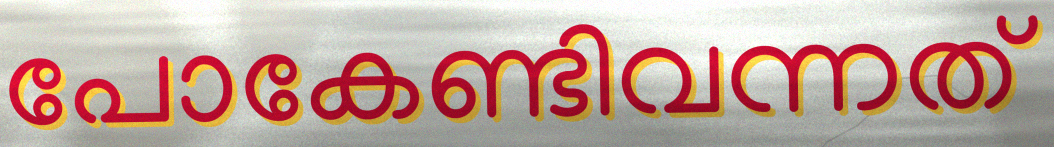
പോകേണ്ടിവന്നത്